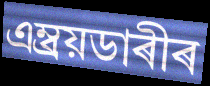
এম্ব্ৰয়ডাৰীৰ